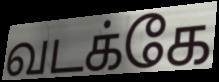
வடக்கே